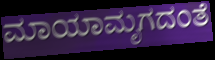
ಮಾಯಾಮೃಗದಂತೆ